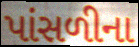
પાંસળીના